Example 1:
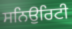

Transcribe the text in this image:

ਸਨਿਉਰਿਟੀ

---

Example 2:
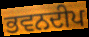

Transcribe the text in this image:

ਭਵਨਦੀਪ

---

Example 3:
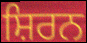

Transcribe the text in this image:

ਸ਼ਿਰਨ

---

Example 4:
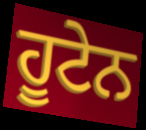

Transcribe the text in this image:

ਹੂਟੇਨ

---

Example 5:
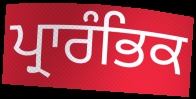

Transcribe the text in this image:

ਪ੍ਰਾਰੰਭਿਕ